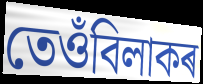
তেওঁবিলাকৰ